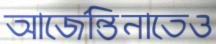
আর্জেন্তিনাতেও